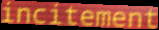
incitement